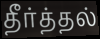
தீர்த்தல்